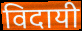
विदायी